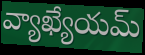
వ్యాఖ్యేయమ్